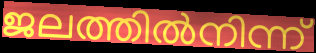
ജലത്തിൽനിന്ന്